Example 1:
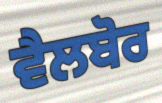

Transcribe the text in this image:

ਵੈਲਬੋਰ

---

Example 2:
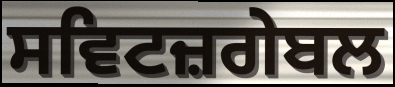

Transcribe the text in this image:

ਸਵਿਟਜ਼ਗੇਬਲ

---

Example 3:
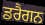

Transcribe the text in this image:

ਡਰੈਗਨ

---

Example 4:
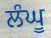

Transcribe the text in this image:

ਲੰਘੂ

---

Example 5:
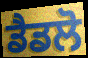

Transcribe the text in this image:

ਡੈਡਲੋ